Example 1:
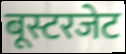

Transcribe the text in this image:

बूस्टरजेट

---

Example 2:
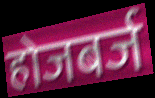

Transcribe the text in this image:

होजबर्ज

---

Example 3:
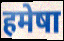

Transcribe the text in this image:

हमेषा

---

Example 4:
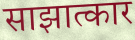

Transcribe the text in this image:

साझात्कार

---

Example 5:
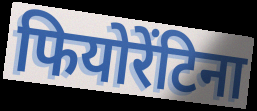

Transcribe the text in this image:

फियोरेंटिना